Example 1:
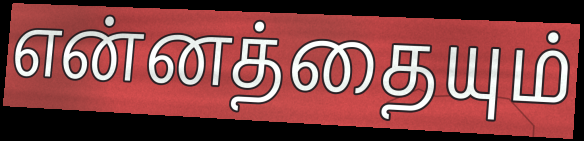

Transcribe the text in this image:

என்னத்தையும்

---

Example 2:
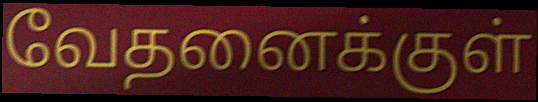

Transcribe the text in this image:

வேதனைக்குள்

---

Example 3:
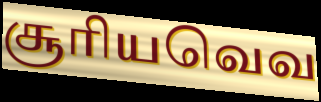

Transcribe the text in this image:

சூரியவெவ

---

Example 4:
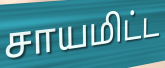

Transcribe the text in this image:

சாயமிட்ட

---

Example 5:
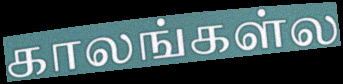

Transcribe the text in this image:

காலங்கள்ல